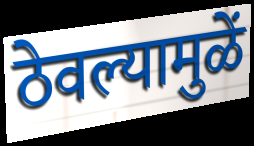
ठेवल्यामुळें